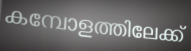
കമ്പോളത്തിലേക്ക്